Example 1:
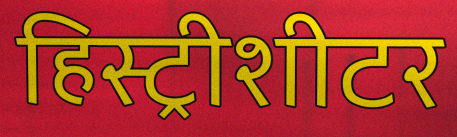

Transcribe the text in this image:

हिस्ट्रीशीटर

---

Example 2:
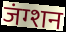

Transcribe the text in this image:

जंग्शन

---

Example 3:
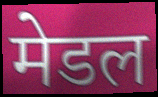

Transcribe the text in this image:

मेडल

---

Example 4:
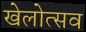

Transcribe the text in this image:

खेलोत्सव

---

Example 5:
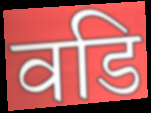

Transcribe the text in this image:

वडि